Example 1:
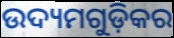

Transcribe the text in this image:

ଉଦ୍ୟମଗୁଡ଼ିକର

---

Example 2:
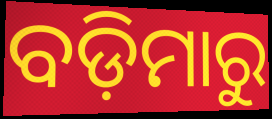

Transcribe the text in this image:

ବଡ଼ିମାରୁ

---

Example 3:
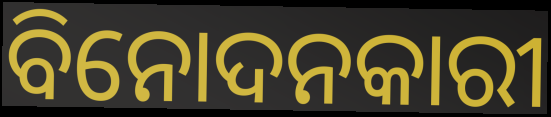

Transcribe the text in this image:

ବିନୋଦନକାରୀ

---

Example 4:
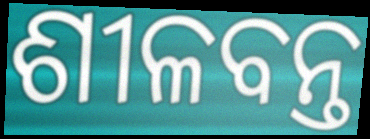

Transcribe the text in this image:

ଶୀଳବନ୍ତ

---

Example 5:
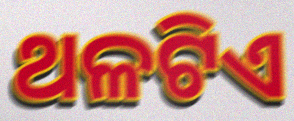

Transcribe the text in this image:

ଥଳଟିଏ